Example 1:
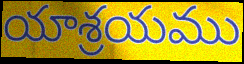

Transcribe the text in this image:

యాశ్రయము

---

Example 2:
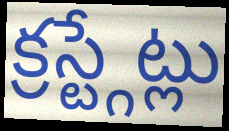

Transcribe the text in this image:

క్రస్ట్గేట్లు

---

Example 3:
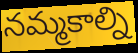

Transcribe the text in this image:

నమ్మకాల్ని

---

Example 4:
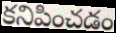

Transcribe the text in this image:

కనిపించడం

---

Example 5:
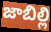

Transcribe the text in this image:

జాబిల్లి